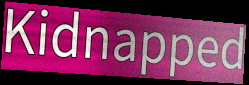
Kidnapped